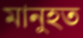
মানুহত